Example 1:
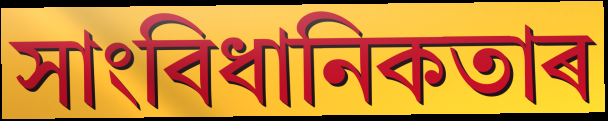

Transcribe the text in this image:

সাংবিধানিকতাৰ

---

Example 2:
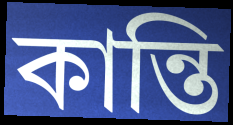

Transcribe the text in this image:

কান্তি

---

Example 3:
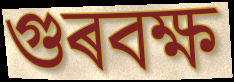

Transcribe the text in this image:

গুৰবক্ষ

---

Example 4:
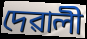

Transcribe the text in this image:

দেৱালী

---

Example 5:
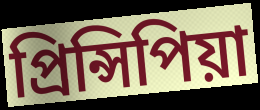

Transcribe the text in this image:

প্ৰিন্সিপিয়া